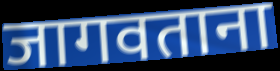
जागवताना